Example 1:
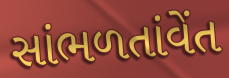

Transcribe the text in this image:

સાંભળતાંવેંત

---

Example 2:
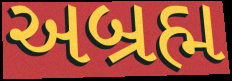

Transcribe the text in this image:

અબ્રહ્મ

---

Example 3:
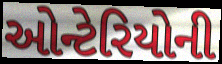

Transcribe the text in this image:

ઓન્ટેરિયોની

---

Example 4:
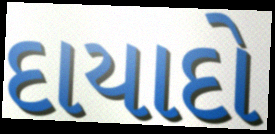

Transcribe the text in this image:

દાયાદો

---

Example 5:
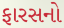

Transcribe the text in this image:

ફારસનો